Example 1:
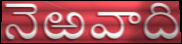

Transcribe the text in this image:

నెఱవాది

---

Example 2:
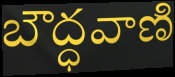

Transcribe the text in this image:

బౌద్ధవాణి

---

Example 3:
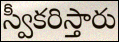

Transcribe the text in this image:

స్వీకరిస్తారు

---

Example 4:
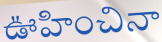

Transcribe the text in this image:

ఊహించినా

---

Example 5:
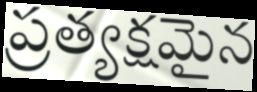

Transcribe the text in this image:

ప్రత్యక్షమైన